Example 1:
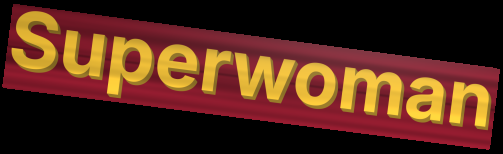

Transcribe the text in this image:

Superwoman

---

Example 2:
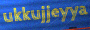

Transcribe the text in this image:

ukkujjeyya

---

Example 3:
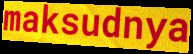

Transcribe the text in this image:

maksudnya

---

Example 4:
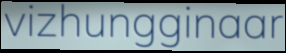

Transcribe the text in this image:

vizhungginaar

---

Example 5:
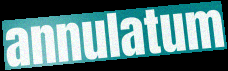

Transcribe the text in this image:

annulatum